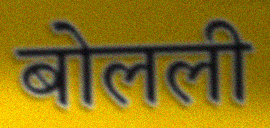
बोलली